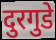
दुरगुडे